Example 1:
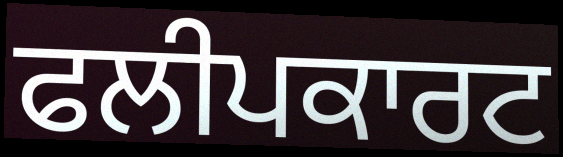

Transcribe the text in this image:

ਫਲੀਪਕਾਰਟ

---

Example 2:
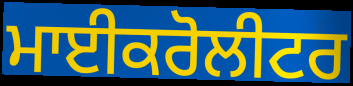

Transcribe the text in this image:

ਮਾਈਕਰੋਲੀਟਰ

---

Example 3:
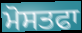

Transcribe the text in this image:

ਮੋਸਤਫਾ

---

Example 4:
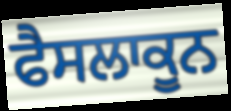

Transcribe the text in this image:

ਫੈਸਲਾਕੂਨ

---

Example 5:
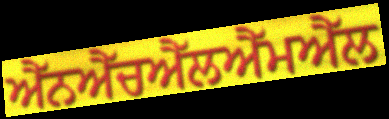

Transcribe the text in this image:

ਐੱਨਐੱਚਐੱਲਐੱਮਐੱਲ